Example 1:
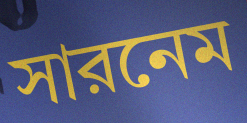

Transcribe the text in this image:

সারনেম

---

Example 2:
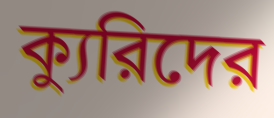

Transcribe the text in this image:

ক্যুরিদের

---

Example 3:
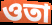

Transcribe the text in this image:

ওতা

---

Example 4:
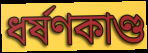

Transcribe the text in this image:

ধর্ষণকাণ্ড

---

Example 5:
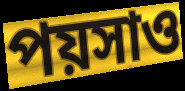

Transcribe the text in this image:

পয়সাও